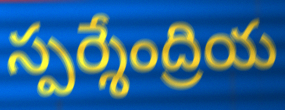
స్పర్శేంద్రియ